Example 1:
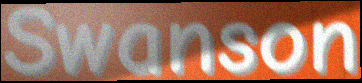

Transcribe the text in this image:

Swanson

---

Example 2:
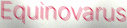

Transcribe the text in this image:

Equinovarus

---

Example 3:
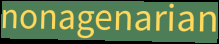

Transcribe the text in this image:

nonagenarian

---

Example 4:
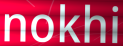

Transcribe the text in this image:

nokhi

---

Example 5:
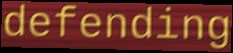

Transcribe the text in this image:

defending